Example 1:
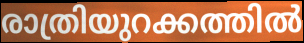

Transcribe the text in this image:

രാത്രിയുറക്കത്തിൽ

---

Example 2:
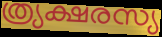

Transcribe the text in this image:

ത്ര്യക്ഷരസ്യ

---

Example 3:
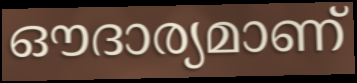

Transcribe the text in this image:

ഔദാര്യമാണ്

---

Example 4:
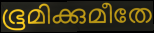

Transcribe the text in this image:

ഭൂമിക്കുമീതേ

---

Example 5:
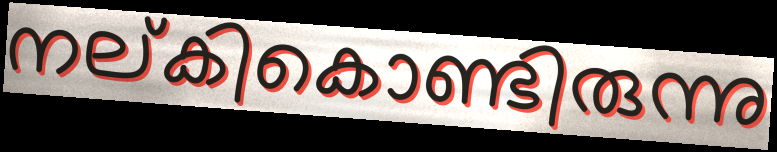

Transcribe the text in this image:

നല്കികൊണ്ടിരുന്നു